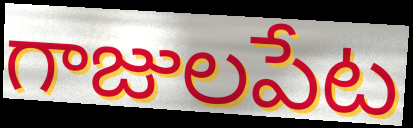
గాజులపేట